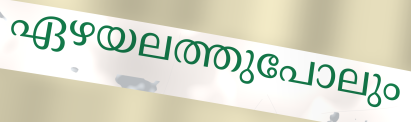
ഏഴയലത്തുപോലും